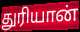
துரியான்